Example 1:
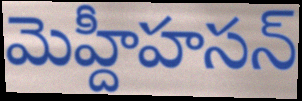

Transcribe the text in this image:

మెహ్దీహసన్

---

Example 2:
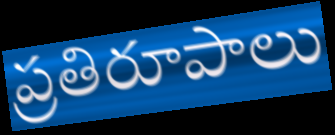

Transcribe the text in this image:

ప్రతిరూపాలు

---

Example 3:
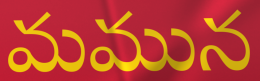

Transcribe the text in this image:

మమున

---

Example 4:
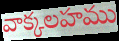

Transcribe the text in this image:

వాక్కలహము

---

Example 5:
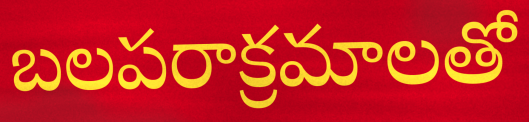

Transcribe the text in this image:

బలపరాక్రమాలతో